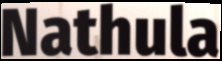
Nathula